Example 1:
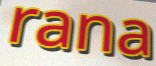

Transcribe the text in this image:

rana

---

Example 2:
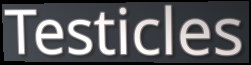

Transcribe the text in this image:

Testicles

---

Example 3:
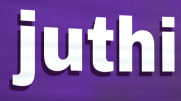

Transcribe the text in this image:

juthi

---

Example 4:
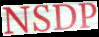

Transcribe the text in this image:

NSDP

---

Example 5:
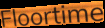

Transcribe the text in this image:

Floortime